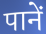
पानें